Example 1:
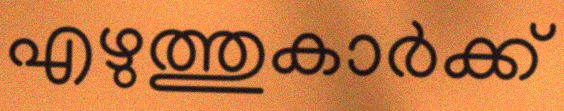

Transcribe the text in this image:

എഴുത്തുകാർക്ക്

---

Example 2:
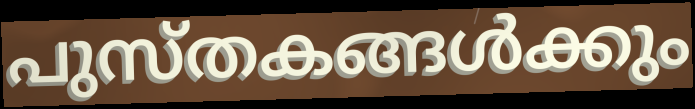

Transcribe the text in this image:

പുസ്തകങ്ങൾക്കും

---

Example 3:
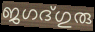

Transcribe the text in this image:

ജഗദ്ഗുരു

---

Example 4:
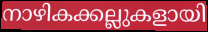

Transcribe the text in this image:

നാഴികക്കല്ലുകളായി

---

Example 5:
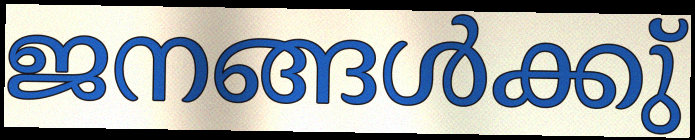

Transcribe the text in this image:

ജനങ്ങൾക്കു്